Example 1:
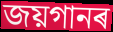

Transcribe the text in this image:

জয়গানৰ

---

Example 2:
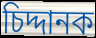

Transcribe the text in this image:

চিদ্দানক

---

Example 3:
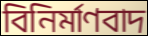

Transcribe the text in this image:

বিনিৰ্মাণবাদ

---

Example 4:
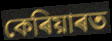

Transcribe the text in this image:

কেৰিয়াৰত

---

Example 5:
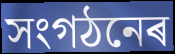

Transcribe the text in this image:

সংগঠনেৰ